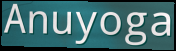
Anuyoga